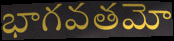
భాగవతమో